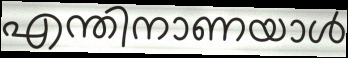
എന്തിനാണയാൾ